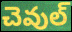
చెవుల్